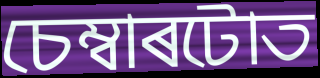
চেম্বাৰটোত